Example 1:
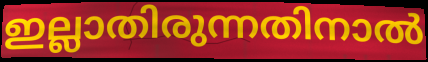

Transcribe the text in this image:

ഇല്ലാതിരുന്നതിനാൽ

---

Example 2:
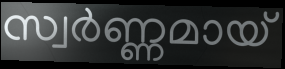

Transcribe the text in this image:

സ്വർണ്ണമായ്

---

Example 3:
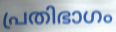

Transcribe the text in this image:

പ്രതിഭാഗം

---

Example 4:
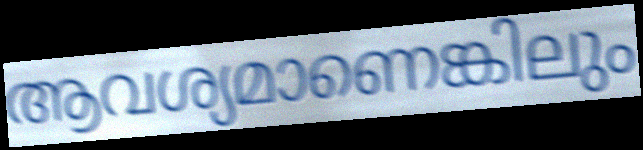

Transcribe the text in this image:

ആവശ്യമാണെങ്കിലും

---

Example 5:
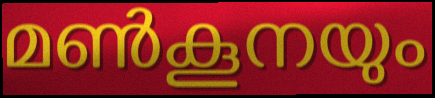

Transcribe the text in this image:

മൺകൂനയും